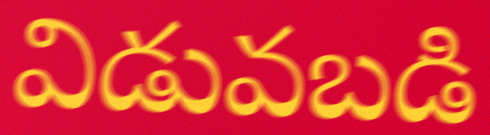
విడువబడి